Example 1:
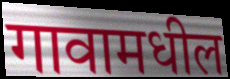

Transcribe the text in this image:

गावामधील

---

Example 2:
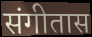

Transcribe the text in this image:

संगीतास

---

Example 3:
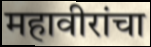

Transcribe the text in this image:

महावीरांचा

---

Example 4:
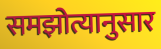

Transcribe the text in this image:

समझोत्यानुसार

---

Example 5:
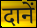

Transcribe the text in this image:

दानें